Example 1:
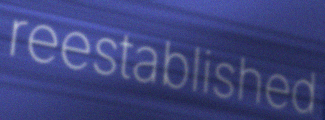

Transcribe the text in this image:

reestablished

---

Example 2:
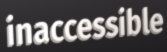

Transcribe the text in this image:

inaccessible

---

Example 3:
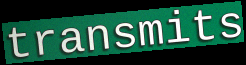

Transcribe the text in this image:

transmits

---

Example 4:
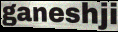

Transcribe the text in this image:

ganeshji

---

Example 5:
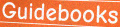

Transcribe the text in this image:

Guidebooks